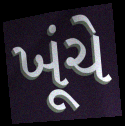
ખૂંચે